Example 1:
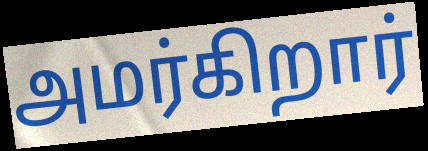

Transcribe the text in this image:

அமர்கிறார்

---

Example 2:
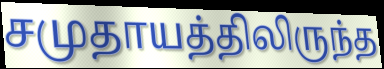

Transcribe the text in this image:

சமுதாயத்திலிருந்த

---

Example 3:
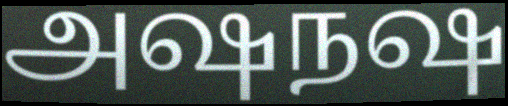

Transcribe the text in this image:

அஷநஷ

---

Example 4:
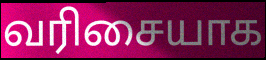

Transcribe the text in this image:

வரிசையாக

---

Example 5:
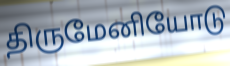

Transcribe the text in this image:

திருமேனியோடு